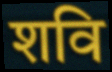
शवि